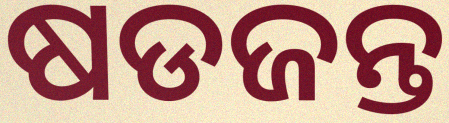
ଷଡଜନ୍ତ